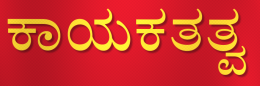
ಕಾಯಕತತ್ವ